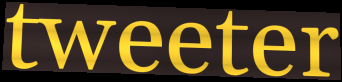
tweeter